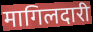
मागिलदारी